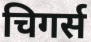
चिगर्स